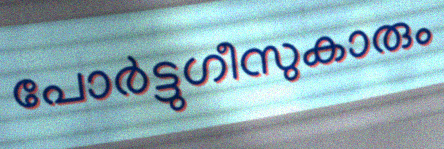
പോർട്ടുഗീസുകാരും